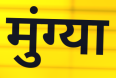
मुंग्या